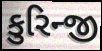
કુરિન્જી